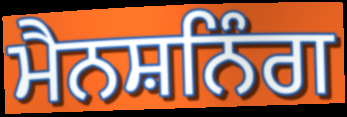
ਮੈਨਸ਼ਨਿੰਗ